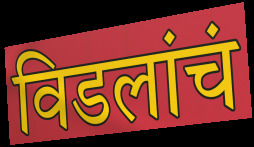
विडलांचं